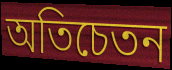
অতিচেতন